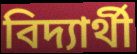
বিদ্যাৰ্থী